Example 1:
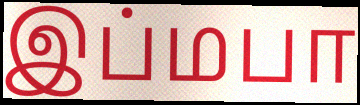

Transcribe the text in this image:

இப்மபா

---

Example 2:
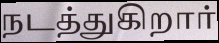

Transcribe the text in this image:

நடத்துகிறார்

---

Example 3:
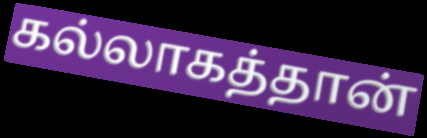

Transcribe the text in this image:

கல்லாகத்தான்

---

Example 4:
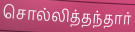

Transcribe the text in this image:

சொல்லித்தந்தார்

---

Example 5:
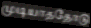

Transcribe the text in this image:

முடியாததோடு